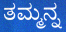
ತಮ್ಮನ್ನ